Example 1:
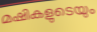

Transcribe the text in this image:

മഷികളുടെയും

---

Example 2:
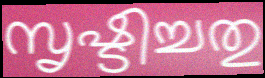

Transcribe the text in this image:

സൃഷ്ടിച്ചതു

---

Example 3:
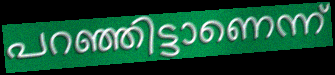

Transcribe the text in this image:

പറഞ്ഞിട്ടാണെന്ന്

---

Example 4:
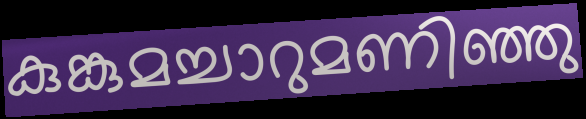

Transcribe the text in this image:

കുങ്കുമച്ചാറുമണിഞ്ഞു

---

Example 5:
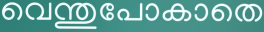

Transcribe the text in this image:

വെന്തുപോകാതെ